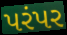
પરંપર